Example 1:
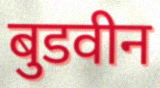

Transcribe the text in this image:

बुडवीन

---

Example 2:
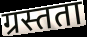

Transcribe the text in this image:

ग्रस्तता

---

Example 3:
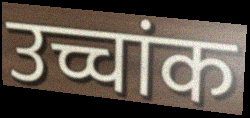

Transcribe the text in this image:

उच्चांक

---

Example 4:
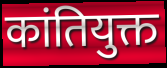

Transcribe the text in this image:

कांतियुक्त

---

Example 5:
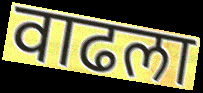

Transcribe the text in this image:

वाढला